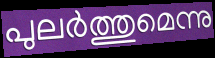
പുലർത്തുമെന്നു